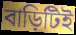
বাড়িটিই